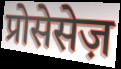
प्रोसेसेज़